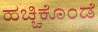
ಹಚ್ಚಿಕೊಂಡೆ